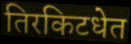
तिरकिटधेत